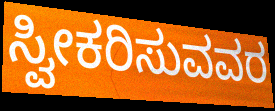
ಸ್ವೀಕರಿಸುವವರ